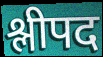
श्लीपद